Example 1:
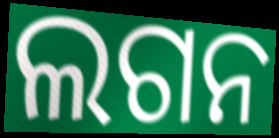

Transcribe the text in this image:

ଲଗନ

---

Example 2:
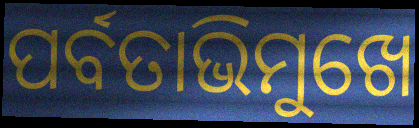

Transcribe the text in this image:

ପର୍ବତାଭିମୁଖେ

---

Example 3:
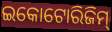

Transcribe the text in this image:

ଇକୋଟୋରିଜିମ୍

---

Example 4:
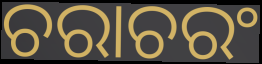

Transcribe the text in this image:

ଚରାଚରଂ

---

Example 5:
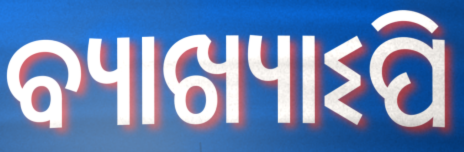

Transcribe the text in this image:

ବ୍ୟାଖ୍ୟାଽପି